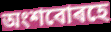
অংশবোৰহে